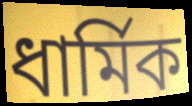
ধার্মিক